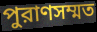
পুরাণসম্মত